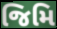
જિમિ